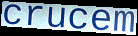
crucem